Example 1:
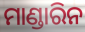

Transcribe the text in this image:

ମାଣ୍ଡାରିନ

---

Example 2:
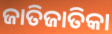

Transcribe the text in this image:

ଜାତିଜାତିକା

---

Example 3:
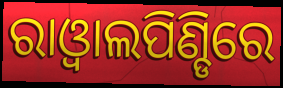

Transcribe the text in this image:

ରାଓ୍ଵାଲପିଣ୍ଡିରେ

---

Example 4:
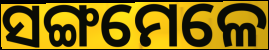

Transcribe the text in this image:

ସଙ୍ଗମେଳେ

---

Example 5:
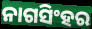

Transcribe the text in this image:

ନାଗସିଂହର